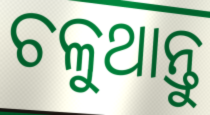
ଚଳୁଥାନ୍ତୁ